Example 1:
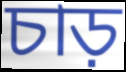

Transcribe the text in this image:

চাড়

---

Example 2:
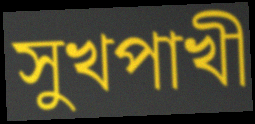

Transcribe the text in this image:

সুখপাখী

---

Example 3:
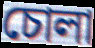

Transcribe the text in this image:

চোলা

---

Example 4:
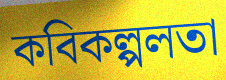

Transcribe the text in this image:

কবিকল্পলতা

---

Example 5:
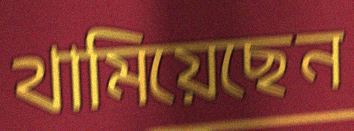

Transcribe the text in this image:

থামিয়েছেন